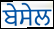
ਬੇਸੇਲ